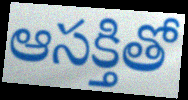
ఆసక్తితో